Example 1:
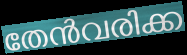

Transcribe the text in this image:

തേൻവരിക്ക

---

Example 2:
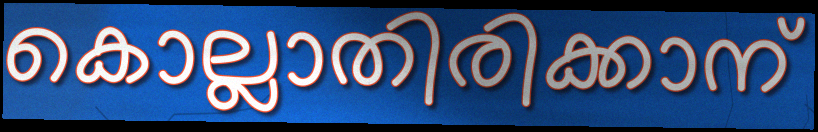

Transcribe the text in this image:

കൊല്ലാതിരിക്കാന്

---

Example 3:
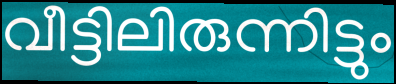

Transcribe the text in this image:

വീട്ടിലിരുന്നിട്ടും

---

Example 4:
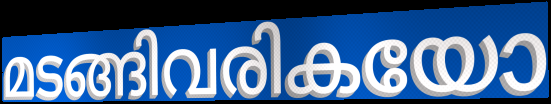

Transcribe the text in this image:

മടങ്ങിവരികയോ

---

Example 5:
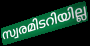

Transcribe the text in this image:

സ്വരമിടറിയില്ല